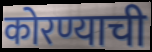
कोरण्याची